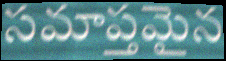
సమాప్తమైన